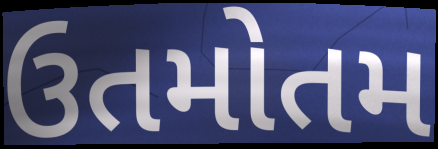
ઉતમોતમ